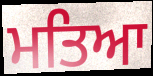
ਮਤਿਆ